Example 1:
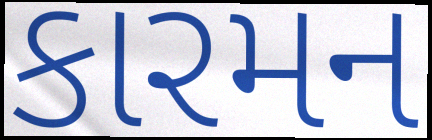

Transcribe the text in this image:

કારમન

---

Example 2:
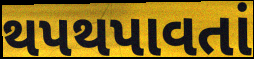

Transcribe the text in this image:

થપથપાવતાં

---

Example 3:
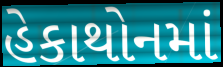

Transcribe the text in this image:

હેકાથોનમાં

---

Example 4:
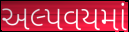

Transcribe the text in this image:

અલ્પવયમાં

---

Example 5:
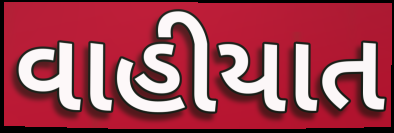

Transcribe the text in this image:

વાહીયાત